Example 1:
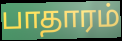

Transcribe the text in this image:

பாதாரம்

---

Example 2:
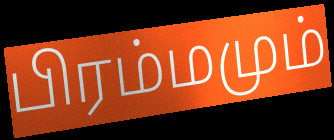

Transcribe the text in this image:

பிரம்மமும்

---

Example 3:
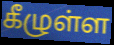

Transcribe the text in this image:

கீழுள்ள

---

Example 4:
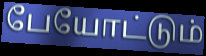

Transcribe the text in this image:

பேயோட்டும்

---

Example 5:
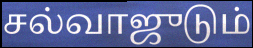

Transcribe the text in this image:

சல்வாஜுடும்